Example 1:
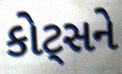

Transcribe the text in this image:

કોટ્સને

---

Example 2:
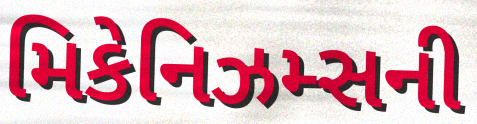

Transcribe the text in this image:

મિકેનિઝમ્સની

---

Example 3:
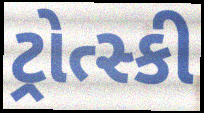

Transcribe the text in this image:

ટ્રોત્સ્કી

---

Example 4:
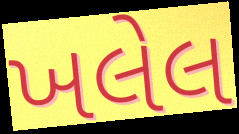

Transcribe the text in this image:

ખલેલ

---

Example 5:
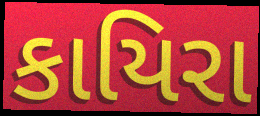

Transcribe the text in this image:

કાયિરા